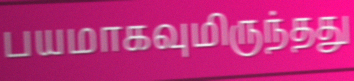
பயமாகவுமிருந்தது